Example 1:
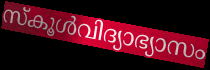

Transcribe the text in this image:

സ്കൂൾവിദ്യാഭ്യാസം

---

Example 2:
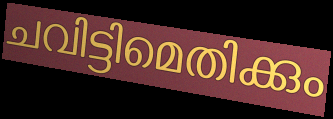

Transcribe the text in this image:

ചവിട്ടിമെതിക്കും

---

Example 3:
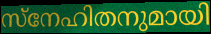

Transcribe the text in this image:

സ്നേഹിതനുമായി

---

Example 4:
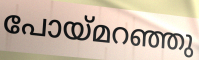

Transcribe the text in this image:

പോയ്മറഞ്ഞു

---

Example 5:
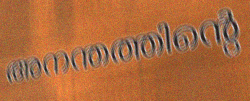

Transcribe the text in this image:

അനന്തത്തിന്റെ